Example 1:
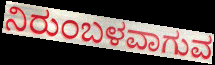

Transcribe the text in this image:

ನಿರುಂಬಳವಾಗುವ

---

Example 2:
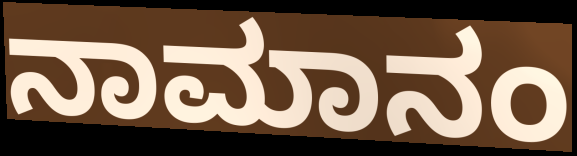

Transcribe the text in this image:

ನಾಮಾನಂ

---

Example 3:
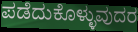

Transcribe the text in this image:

ಪಡೆದುಕೊಳ್ಳುವುದರ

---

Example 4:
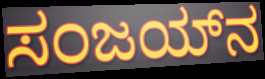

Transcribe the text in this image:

ಸಂಜಯ್‌ನ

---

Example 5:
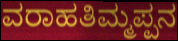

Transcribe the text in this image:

ವರಾಹತಿಮ್ಮಪ್ಪನ